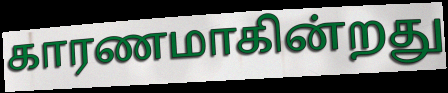
காரணமாகின்றது